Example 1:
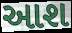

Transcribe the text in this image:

આશ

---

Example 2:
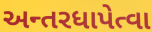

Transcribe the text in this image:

અન્તરધાપેત્વા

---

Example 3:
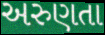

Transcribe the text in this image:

અરુણતા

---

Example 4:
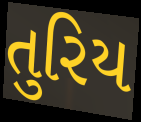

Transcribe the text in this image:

તુરિય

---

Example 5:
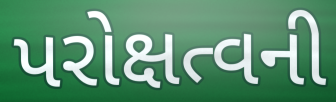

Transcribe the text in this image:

પરોક્ષત્વની